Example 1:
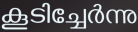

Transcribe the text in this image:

കൂടിച്ചേർന്നു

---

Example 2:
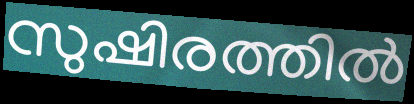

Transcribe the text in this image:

സുഷിരത്തിൽ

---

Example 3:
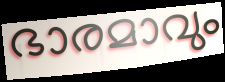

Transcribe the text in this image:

ഭാരമാവും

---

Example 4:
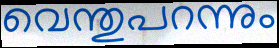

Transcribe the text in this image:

വെന്തുപറന്നും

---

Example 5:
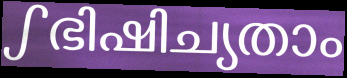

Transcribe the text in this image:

ഽഭിഷിച്യതാം